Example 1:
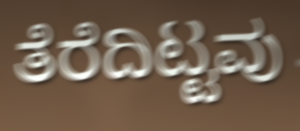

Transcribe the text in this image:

ತೆರೆದಿಟ್ಟವು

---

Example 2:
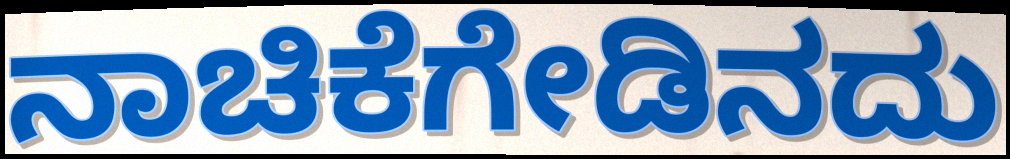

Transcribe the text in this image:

ನಾಚಿಕೆಗೇಡಿನದು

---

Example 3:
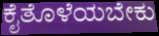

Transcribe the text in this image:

ಕೈತೊಳೆಯಬೇಕು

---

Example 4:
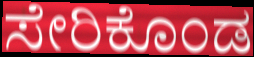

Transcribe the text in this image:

ಸೇರಿಕೊಂಡ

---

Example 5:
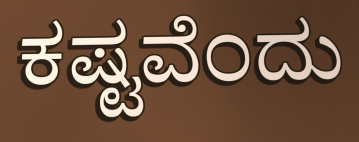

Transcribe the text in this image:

ಕಷ್ಟವೆಂದು